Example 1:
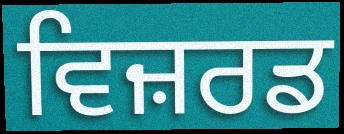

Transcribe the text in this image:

ਵਿਜ਼ਰਡ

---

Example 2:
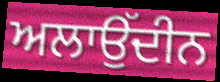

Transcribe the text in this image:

ਅਲਾਉੱਦੀਨ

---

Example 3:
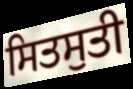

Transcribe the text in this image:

ਸਿਤਸੁਤੀ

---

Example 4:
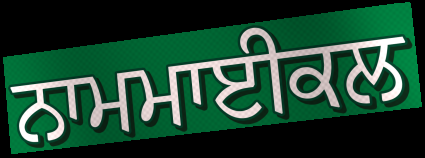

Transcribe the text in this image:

ਨਾਮਮਾਈਕਲ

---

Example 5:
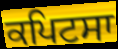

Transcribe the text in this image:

ਕਪਿਟਸਾ